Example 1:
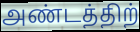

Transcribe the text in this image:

அண்டத்திற்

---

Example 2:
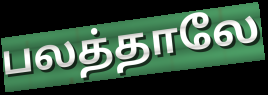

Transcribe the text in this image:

பலத்தாலே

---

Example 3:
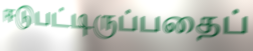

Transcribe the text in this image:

ஈடுபட்டிருப்பதைப்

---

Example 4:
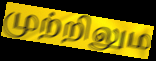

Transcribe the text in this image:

முற்றிலும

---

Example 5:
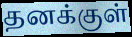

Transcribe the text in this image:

தனக்குள்